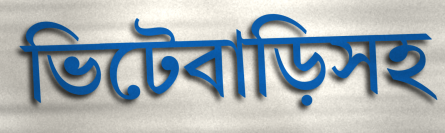
ভিটেবাড়িসহ